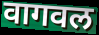
वागवल